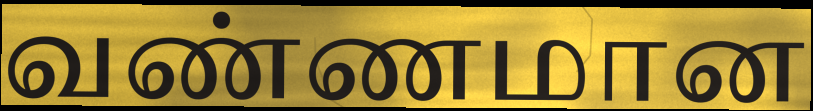
வண்ணமான